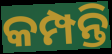
କମ୍ପନ୍ତି